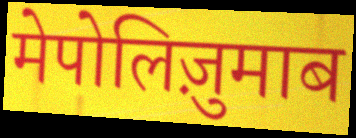
मेपोलिज़ुमाब